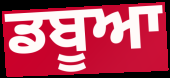
ਡਬੂਆ